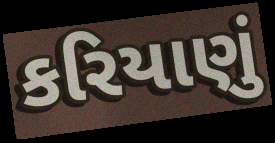
કરિયાણું